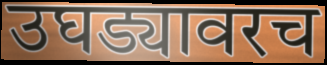
उघड्यावरच